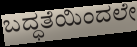
ಬದ್ಧತೆಯಿಂದಲೇ